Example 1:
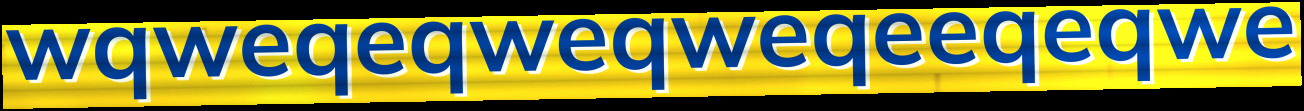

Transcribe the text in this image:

wqweqeqweqweqeeqeqwe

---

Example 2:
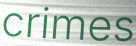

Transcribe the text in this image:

crimes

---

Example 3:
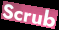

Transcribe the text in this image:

Scrub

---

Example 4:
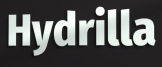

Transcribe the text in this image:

Hydrilla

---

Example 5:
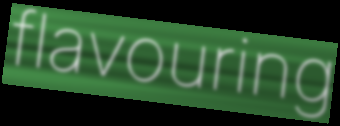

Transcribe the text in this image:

flavouring